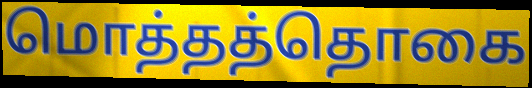
மொத்தத்தொகை